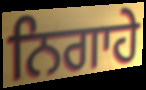
ਨਿਗਾਹੇ